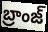
బ్రాంజ్